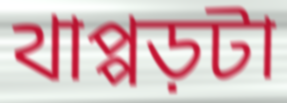
থাপ্পড়টা